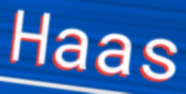
Haas